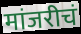
मांजरीचं